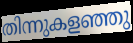
തിന്നുകളഞ്ഞു